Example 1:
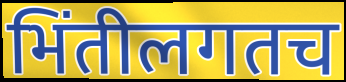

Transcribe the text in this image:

भिंतीलगतच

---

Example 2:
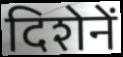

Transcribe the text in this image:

दिशेनें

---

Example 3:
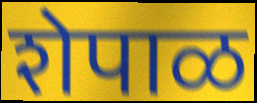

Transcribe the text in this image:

शेपाळ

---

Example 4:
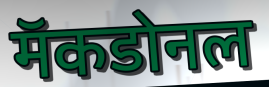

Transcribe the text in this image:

मॅकडोनल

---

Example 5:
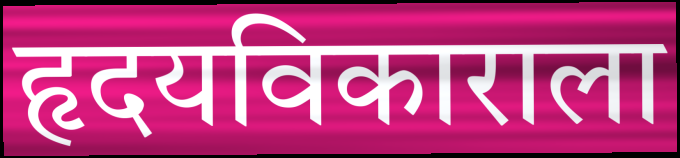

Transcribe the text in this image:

हृदयविकाराला